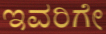
ಇವರಿಗೇ